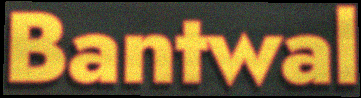
Bantwal